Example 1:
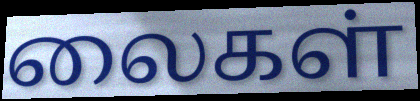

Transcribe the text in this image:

லைகள்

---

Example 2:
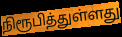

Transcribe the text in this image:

நிரூபித்துள்ளது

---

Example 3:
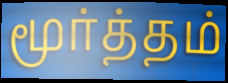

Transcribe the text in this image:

மூர்த்தம்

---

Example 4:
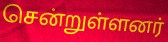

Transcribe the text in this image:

சென்றுள்ளனர்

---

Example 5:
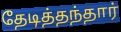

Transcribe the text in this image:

தேடித்தந்தார்